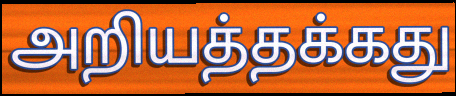
அறியத்தக்கது